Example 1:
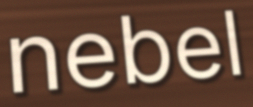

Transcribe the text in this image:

nebel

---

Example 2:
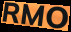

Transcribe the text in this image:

RMO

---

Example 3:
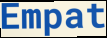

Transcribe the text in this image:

Empat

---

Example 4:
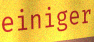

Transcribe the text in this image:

einiger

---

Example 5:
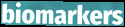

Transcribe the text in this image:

biomarkers